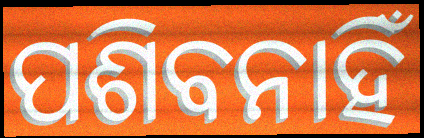
ପଶିବନାହିଁ